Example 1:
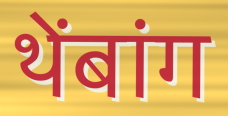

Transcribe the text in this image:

थेंबांग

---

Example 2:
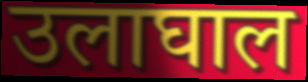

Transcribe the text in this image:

उलाघाल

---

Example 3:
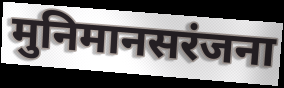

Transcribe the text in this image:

मुनिमानसरंजना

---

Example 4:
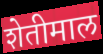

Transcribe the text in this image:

शेतीमाल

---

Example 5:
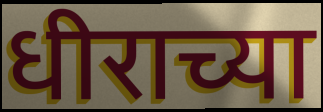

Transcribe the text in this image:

धीराच्या